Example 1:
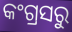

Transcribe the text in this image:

କଂଗ୍ରସରୁ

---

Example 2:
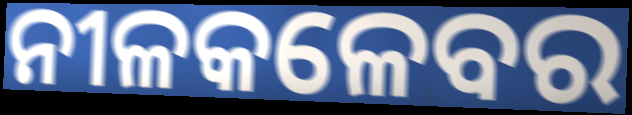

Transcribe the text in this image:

ନୀଳକଳେବର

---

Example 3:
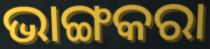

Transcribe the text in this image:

ଭାଙ୍ଗକରା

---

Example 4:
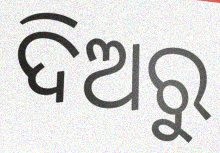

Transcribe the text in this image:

ଦିଅରୁ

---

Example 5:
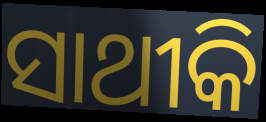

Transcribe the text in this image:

ସାଥୀକି